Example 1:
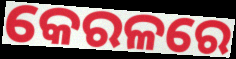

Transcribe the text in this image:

କେରଳରେ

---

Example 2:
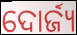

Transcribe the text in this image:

ଦୋର୍ଜ୍ୟ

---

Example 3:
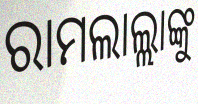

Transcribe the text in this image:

ରାମଲାଲ୍ଲାଙ୍କୁ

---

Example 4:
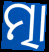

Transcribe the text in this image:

ତ୍ମା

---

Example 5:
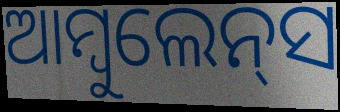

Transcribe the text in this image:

ଆମ୍ବୁଲେନ୍‌ସ